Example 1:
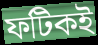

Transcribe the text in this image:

ফটিকই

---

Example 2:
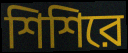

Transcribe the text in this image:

শিশিরে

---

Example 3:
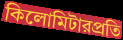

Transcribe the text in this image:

কিলোমিটারপ্রতি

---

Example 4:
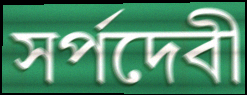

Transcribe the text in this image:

সর্পদেবী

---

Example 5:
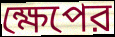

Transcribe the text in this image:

ক্ষেপের